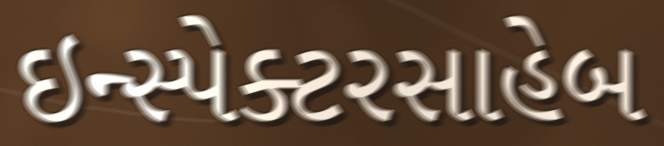
ઇન્સ્પેક્ટરસાહેબ